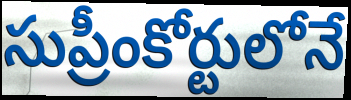
సుప్రీంకోర్టులోనే